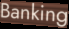
Banking